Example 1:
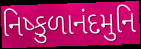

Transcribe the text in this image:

નિષ્કુળાનંદમુનિ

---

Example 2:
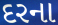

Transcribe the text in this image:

દરના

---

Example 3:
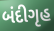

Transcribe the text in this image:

બંદીગૃહ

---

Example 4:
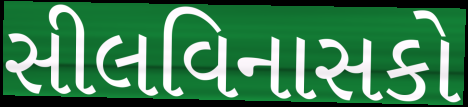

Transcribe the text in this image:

સીલવિનાસકો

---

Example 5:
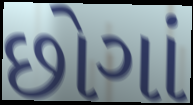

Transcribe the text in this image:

છોગાં